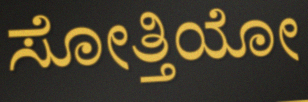
ಸೋತ್ತಿಯೋ